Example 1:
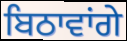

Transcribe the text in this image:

ਬਿਠਾਵਾਂਗੇ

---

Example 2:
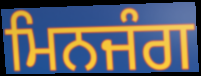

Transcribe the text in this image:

ਮਿਨਜੰਗ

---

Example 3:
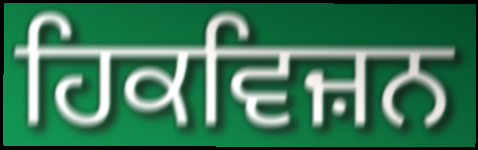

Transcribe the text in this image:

ਹਿਕਵਿਜ਼ਨ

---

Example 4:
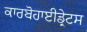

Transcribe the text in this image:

ਕਾਰਬੋਹਾਈਡ੍ਰੇਟਸ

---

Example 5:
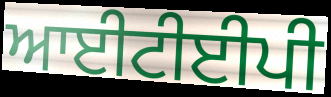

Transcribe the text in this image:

ਆਈਟੀਈਪੀ